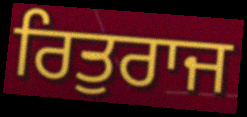
ਰਿਤੁਰਾਜ